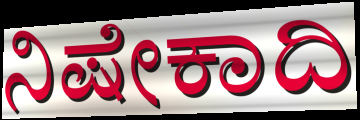
ನಿಷೇಕಾದಿ